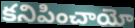
కనిపించాయో